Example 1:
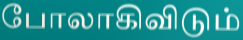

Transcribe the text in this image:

போலாகிவிடும்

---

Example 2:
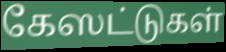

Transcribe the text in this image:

கேஸட்டுகள்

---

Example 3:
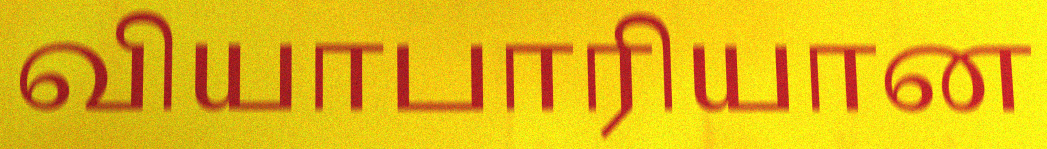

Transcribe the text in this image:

வியாபாரியான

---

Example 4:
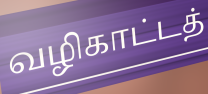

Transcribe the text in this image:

வழிகாட்டத்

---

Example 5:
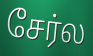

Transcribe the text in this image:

சேர்ல